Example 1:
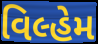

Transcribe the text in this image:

વિલ્હેમ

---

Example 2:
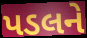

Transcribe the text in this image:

પડલને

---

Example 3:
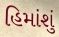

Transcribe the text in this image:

હિમાંશું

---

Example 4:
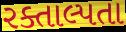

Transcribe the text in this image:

રક્તાલ્પતા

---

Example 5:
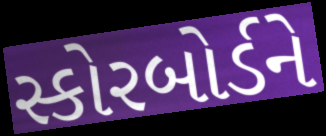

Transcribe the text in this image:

સ્કોરબોર્ડને